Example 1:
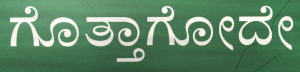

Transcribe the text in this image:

ಗೊತ್ತಾಗೋದೇ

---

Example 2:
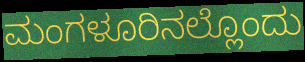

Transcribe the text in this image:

ಮಂಗಳೂರಿನಲ್ಲೊಂದು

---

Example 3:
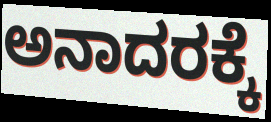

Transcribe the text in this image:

ಅನಾದರಕ್ಕೆ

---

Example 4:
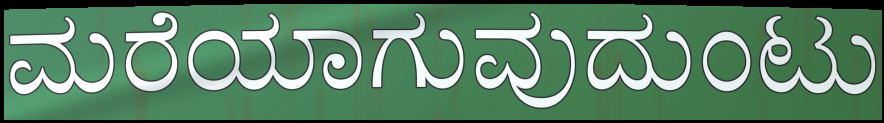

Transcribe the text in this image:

ಮರೆಯಾಗುವುದುಂಟು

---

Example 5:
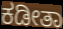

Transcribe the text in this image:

ಕಡೀತಾ